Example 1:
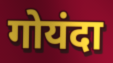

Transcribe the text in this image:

गोयंदा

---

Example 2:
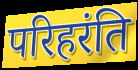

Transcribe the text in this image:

परिहरंति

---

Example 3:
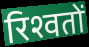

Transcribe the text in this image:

रिश्वतों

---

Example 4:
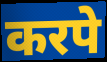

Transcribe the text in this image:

करपे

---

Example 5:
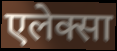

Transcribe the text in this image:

एलेक्सा